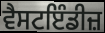
ਵੈਸਟਇੰਡੀਜ਼